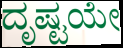
ದೃಷ್ಟಯೇ